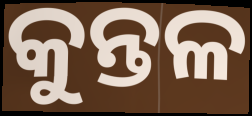
କୁନ୍ତଳ